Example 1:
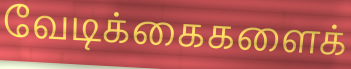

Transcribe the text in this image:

வேடிக்கைகளைக்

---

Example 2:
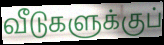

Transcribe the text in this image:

வீடுகளுக்குப்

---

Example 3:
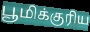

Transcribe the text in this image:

பூமிக்குரிய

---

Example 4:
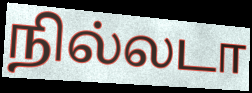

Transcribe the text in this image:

நில்லடா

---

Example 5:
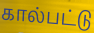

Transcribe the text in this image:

கால்பட்டு